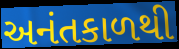
અનંતકાળથી